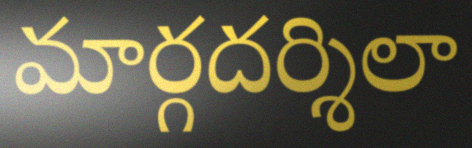
మార్గదర్శిలా